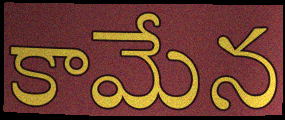
కామేన